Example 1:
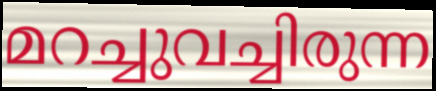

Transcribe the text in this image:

മറച്ചുവച്ചിരുന്ന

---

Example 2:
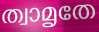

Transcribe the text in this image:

ത്വാമൃതേ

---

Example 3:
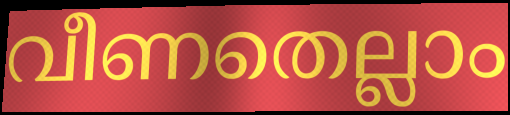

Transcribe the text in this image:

വീണതെല്ലാം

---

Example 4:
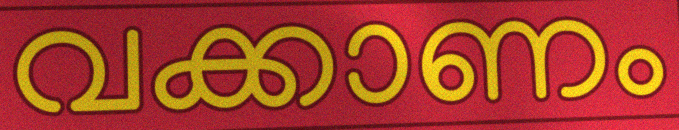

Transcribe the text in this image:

വക്കാണം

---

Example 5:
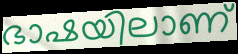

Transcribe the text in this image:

ഭാഷയിലാണ്